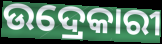
ଉଦ୍ରେକାରୀ